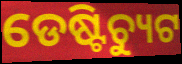
ଡେଷ୍ଟିଚ୍ୟୁଟ